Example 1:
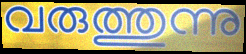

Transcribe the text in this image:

വരുത്തുന്നു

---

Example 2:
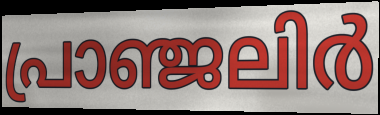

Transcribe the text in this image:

പ്രാഞ്ജലിർ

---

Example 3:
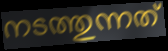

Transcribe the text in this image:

നടത്തുന്നത്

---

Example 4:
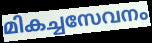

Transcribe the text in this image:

മികച്ചസേവനം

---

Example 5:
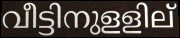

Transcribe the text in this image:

വീട്ടിനുളളില്